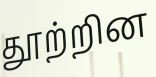
தூற்றின